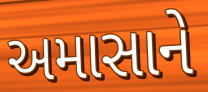
અમાસાને